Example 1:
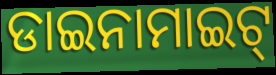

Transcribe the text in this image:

ଡାଇନାମାଇଟ୍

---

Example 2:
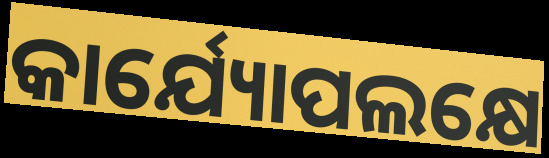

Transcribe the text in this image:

କାର୍ଯ୍ୟୋପଲକ୍ଷେ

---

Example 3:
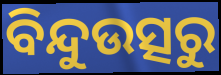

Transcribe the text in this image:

ବିନ୍ଦୁଉତ୍ସରୁ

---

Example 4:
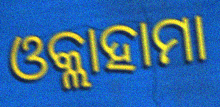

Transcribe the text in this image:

ଓକ୍ଲାହାମା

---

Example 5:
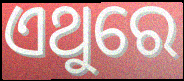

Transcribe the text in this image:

ଏଥୁରେ